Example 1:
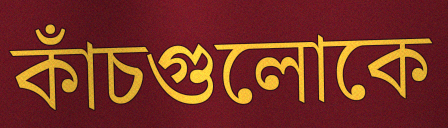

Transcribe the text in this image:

কাঁচগুলোকে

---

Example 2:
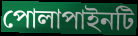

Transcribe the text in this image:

পোলাপাইনটি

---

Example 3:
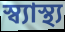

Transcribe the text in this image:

স্ব্যাস্থ্য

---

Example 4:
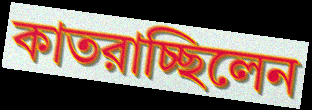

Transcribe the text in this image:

কাতরাচ্ছিলেন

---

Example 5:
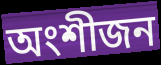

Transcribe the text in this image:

অংশীজন